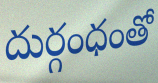
దుర్గంధంతో